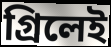
গ্রিলেই